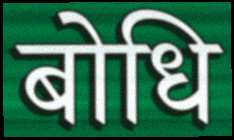
बोधि